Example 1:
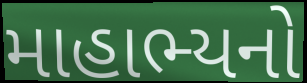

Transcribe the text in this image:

માહાભ્યનો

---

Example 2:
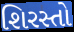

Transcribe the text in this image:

શિરસ્તો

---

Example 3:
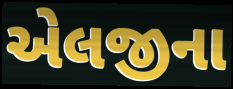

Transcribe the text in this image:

એલજીના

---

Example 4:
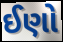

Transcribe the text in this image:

ઈણો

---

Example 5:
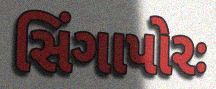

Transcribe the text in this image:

સિંગાપોરઃ